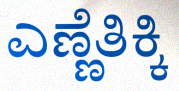
ಎಣ್ಣೆತಿಕ್ಕಿ